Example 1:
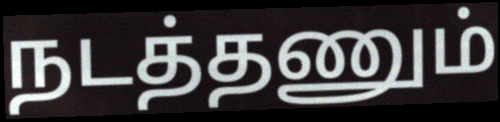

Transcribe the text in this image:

நடத்தணும்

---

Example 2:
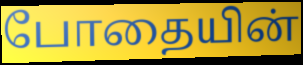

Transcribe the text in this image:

போதையின்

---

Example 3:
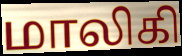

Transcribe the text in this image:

மாலிகி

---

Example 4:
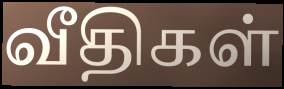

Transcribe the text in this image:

வீதிகள்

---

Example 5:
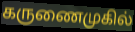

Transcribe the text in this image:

கருணைமுகில்